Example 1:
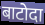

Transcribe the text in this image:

बाटोदा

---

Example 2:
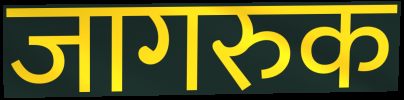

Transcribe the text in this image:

जागरुक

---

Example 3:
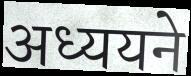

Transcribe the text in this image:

अध्ययने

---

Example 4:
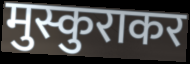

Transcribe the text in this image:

मुस्‍कुराकर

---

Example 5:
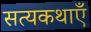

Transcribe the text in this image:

सत्यकथाएँ